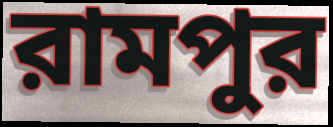
রামপুর